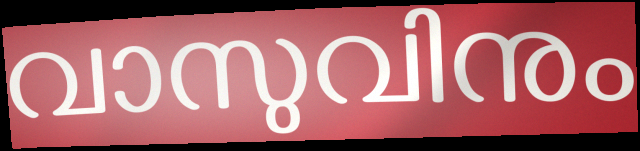
വാസുവിനും